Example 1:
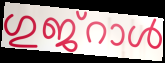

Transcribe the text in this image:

ഗുജ്റാൾ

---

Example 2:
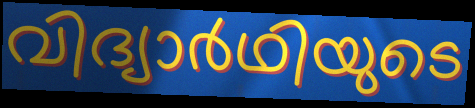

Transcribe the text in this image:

വിദ്യാർഥിയുടെ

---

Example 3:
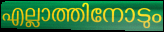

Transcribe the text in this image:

എല്ലാത്തിനോടും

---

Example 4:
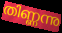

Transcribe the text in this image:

തിണ്ണന്നു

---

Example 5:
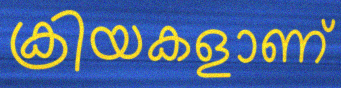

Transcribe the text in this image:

ക്രിയകളാണ്